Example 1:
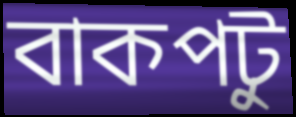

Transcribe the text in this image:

বাকপটু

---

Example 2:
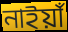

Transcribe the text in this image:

নাইয়াঁ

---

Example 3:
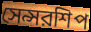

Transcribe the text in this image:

সেন্সরশিপ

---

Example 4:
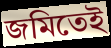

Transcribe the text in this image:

জমিতেই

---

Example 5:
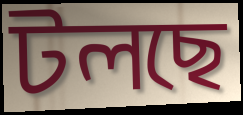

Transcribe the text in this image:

টলছে